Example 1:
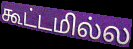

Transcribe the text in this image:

கூட்டமில்ல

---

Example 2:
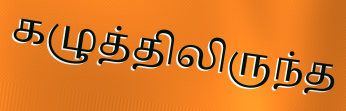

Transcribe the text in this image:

கழுத்திலிருந்த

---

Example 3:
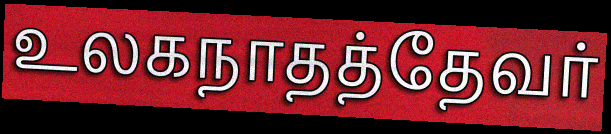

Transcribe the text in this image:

உலகநாதத்தேவர்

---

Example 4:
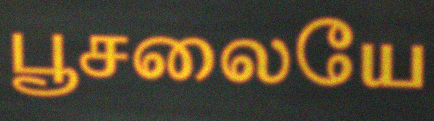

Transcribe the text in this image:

பூசலையே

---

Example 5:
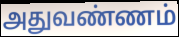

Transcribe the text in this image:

அதுவண்ணம்